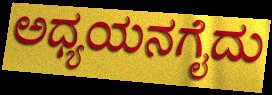
ಅಧ್ಯಯನಗೈದು